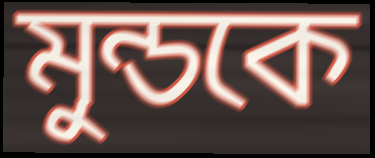
মুন্ডকে